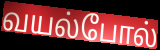
வயல்போல்